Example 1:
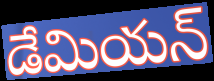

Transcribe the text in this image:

డేమియన్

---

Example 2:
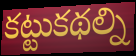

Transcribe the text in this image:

కట్టుకథల్ని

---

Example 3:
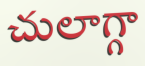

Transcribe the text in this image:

చులాగ్గా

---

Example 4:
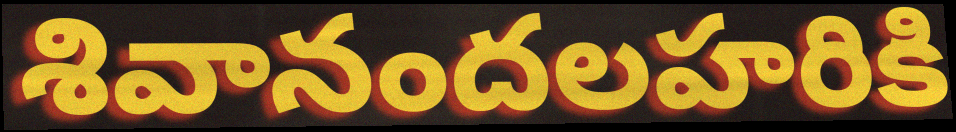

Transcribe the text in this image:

శివానందలహరికి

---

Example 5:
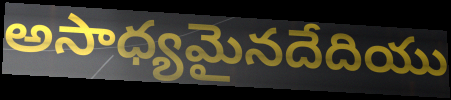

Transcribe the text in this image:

అసాధ్యమైనదేదియు